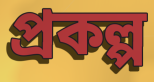
প্ৰকল্প